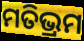
ମତିଭ୍ରମ